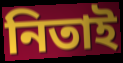
নিতাই